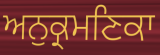
ਅਨੁਕ੍ਰਮਣਿਕਾ